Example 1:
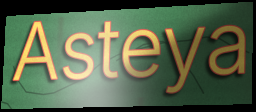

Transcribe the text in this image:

Asteya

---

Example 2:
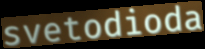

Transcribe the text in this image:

svetodioda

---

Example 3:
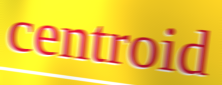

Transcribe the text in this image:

centroid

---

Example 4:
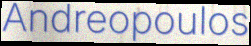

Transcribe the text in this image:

Andreopoulos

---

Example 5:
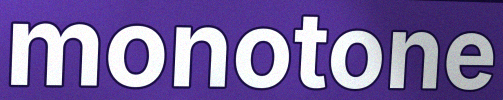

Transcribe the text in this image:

monotone